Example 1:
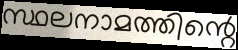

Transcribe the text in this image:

സ്ഥലനാമത്തിന്റെ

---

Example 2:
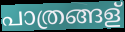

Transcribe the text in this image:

പാത്രങ്ങള്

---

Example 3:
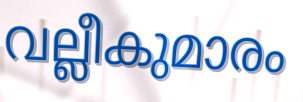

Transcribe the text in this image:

വല്ലീകുമാരം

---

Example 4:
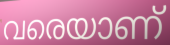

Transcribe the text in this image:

വരെയാണ്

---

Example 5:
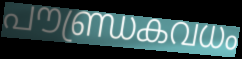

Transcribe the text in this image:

പൗണ്ഡ്രകവധം